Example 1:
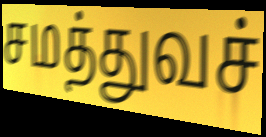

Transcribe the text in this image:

சமத்துவச்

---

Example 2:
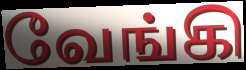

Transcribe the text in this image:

வேங்கி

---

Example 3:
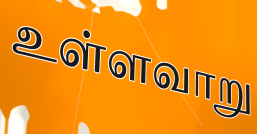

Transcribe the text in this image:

உள்ளவாறு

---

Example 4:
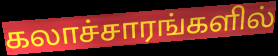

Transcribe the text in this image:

கலாச்சாரங்களில்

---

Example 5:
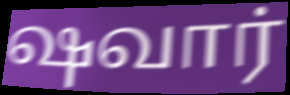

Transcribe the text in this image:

ஷவார்